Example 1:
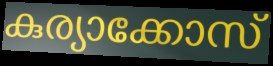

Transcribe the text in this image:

കുര്യാക്കോസ്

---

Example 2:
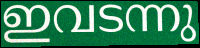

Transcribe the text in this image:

ഇവടന്നു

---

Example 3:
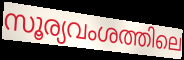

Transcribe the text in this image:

സൂര്യവംശത്തിലെ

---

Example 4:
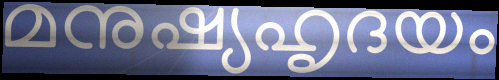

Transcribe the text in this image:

മനുഷ്യഹൃദയം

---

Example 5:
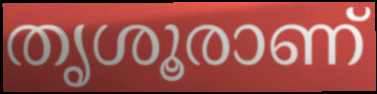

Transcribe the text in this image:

തൃശൂരാണ്